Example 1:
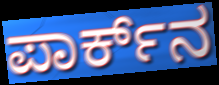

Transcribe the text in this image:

ಪಾರ್ಕ್‌ನ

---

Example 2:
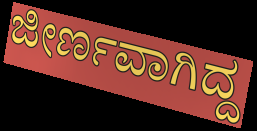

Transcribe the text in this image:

ಜೀರ್ಣವಾಗಿದ್ದ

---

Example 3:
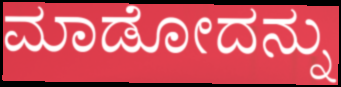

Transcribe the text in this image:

ಮಾಡೋದನ್ನು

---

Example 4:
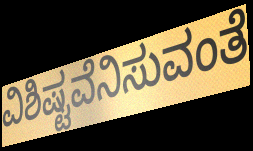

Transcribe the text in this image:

ವಿಶಿಷ್ಟವೆನಿಸುವಂತೆ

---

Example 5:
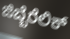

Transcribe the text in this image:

ಜಿಬ್ಬೆರೆಲಿಕ್